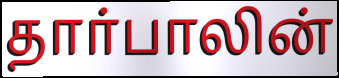
தார்பாலின்